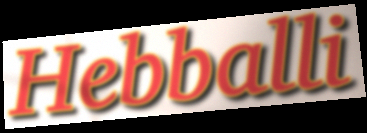
Hebballi